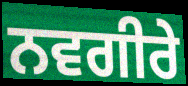
ਨਵਗੀਰੇ